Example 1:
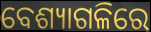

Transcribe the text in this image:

ବେଶ୍ୟାଗଳିରେ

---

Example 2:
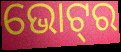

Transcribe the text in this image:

ଭୋଟ୍‍ର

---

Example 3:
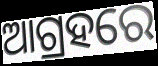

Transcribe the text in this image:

ଆଗ୍ରହରେ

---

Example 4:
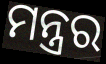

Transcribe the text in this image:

ମନ୍ତ୍ରର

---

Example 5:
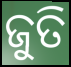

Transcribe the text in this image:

ଜୁତି